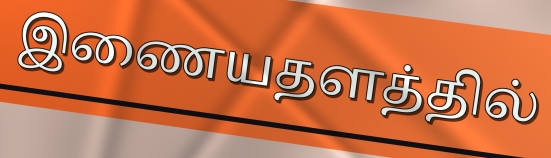
இணையதளத்தில்